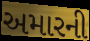
અમારની